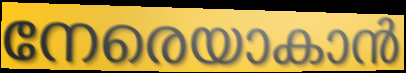
നേരെയാകാൻ